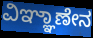
ವಿಞ್ಞಾಣೇನ